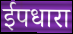
ईपधारा